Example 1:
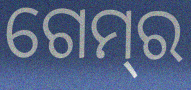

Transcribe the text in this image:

ଗେମ୍‌ର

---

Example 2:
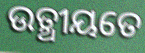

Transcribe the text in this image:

ଉତ୍ଥୀୟତେ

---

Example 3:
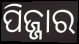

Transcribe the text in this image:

ପିଜ୍ଜାର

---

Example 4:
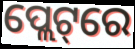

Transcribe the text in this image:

ପ୍ଲେଟ୍‌ରେ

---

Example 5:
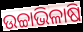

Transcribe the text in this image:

ଉଚ୍ଚାଭିଳାଷି